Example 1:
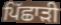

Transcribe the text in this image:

ਪਿੱਛਾੜੀ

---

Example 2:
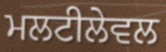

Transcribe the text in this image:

ਮਲਟੀਲੇਵਲ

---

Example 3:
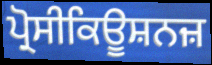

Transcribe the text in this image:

ਪ੍ਰੋਸੀਕਿਊਸ਼ਨਜ਼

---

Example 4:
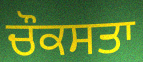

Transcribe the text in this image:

ਚੌਕਸਤਾ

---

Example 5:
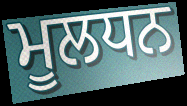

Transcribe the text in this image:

ਮੂਲਧਨ